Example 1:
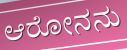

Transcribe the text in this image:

ಆರೋನನು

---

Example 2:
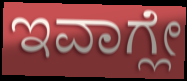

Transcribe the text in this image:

ಇವಾಗ್ಲೇ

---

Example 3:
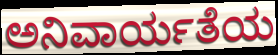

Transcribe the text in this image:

ಅನಿವಾರ್ಯತೆಯ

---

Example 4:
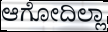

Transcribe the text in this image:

ಆಗೋದಿಲ್ಲಾ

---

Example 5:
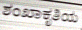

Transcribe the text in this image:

ಶಂಖಾಕೃತಿಯ